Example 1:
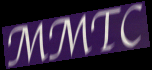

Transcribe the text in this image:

MMTC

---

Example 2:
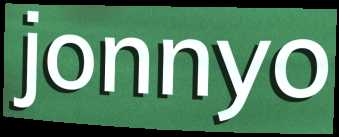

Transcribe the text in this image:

jonnyo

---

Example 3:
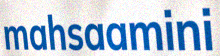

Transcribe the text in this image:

mahsaamini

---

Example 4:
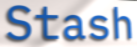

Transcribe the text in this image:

Stash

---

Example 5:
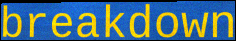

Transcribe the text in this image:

breakdown